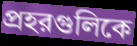
প্রহরগুলিকে